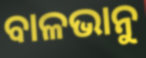
ବାଳଭାନୁ